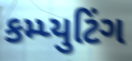
કમ્પ્યુટિંગ